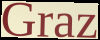
Graz